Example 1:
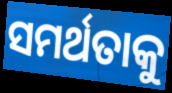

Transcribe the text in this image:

ସମର୍ଥତାକୁ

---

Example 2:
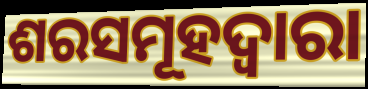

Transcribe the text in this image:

ଶରସମୂହଦ୍ୱାରା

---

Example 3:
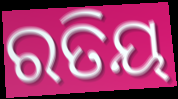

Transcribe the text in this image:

ରତିୟ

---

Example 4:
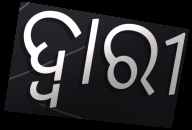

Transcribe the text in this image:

ଦ୍ଵାରୀ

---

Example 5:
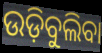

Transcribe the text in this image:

ଉଡ଼ିବୁଲିବା